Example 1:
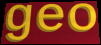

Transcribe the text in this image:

geo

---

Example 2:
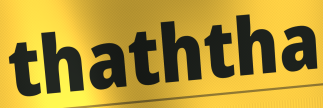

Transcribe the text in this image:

thaththa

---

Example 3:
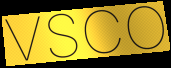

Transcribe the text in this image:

VSCO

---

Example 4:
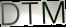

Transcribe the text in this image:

DTM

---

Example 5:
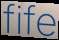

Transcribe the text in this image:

fife